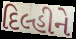
દિલ્હીને